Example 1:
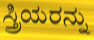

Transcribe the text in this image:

ಸ್ತ್ರಿಯರನ್ನು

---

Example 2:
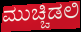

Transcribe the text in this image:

ಮುಚ್ಚಿಡಲಿ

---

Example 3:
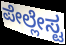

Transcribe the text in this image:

ಪೇಲ್ಲೇಸ್ಟ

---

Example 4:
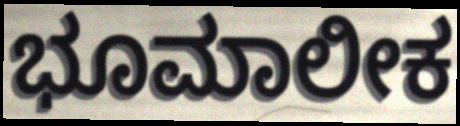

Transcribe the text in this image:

ಭೂಮಾಲೀಕ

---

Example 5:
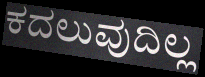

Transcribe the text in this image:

ಕದಲುವುದಿಲ್ಲ